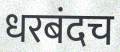
धरबंदच